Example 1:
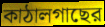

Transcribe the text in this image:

কাঠালগাছের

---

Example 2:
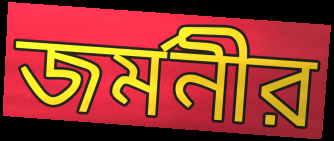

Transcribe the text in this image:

জর্মনীর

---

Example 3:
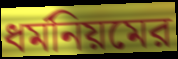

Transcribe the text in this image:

ধর্মনিয়মের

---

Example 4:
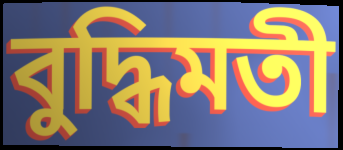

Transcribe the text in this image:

বুদ্ধিমতী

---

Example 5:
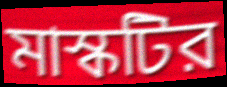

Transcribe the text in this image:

মাস্কটির